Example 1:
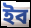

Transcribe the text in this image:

ইব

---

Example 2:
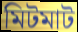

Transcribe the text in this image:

মিটমাট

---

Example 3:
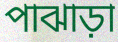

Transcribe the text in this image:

পাঝাড়া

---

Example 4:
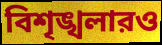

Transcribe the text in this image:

বিশৃঙ্খলারও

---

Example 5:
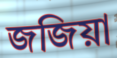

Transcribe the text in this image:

জজিয়া